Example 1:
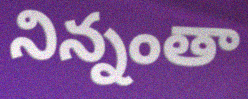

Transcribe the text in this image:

నిన్నంతా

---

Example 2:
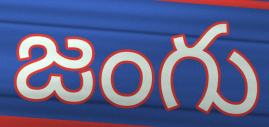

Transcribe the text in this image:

జంగు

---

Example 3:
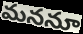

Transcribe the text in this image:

మననూ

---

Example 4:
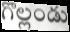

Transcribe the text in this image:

గొల్లండు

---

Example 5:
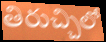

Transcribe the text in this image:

తిరుచ్చిలో